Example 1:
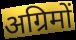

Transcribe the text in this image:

अग्रिमों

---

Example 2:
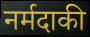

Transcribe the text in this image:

नर्मदाकी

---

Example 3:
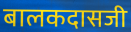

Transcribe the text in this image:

बालकदासजी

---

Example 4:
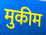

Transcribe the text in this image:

मुकीम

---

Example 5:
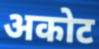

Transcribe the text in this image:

अकोट